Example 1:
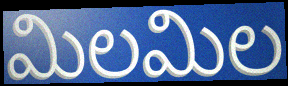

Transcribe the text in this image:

మిలమిల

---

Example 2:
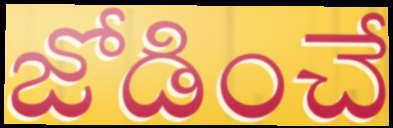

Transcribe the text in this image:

జోడించే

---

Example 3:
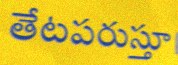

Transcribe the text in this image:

తేటపరుస్తూ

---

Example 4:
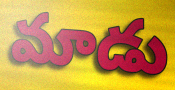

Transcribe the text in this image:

మాడు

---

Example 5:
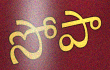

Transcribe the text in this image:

సోపా